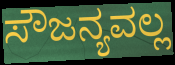
ಸೌಜನ್ಯವಲ್ಲ